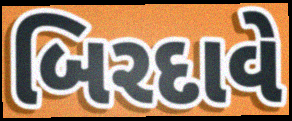
બિરદાવે